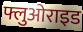
फ्लुओराइड